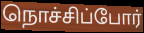
நொச்சிப்போர்